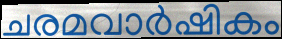
ചരമവാർഷികം